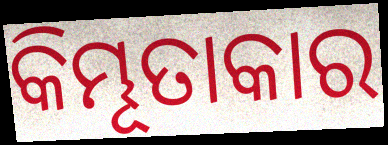
କିମ୍ଭୂତାକାର